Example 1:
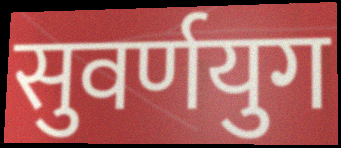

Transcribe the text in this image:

सुवर्णयुग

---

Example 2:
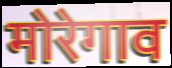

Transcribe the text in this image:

मोरेगाव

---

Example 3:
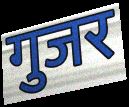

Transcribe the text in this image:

गुजर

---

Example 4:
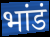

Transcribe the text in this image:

भांडं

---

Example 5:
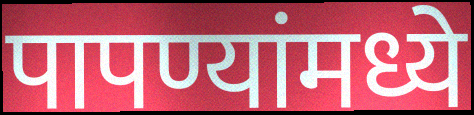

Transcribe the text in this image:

पापण्यांमध्ये